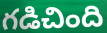
గడిచింది